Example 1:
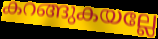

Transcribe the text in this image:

കറങ്ങുകയല്ലേ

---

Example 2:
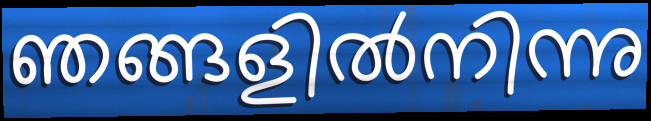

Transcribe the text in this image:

ഞങ്ങളിൽനിന്നു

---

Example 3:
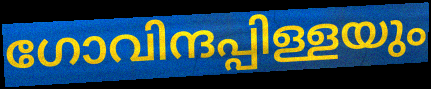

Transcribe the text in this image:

ഗോവിന്ദപ്പിള്ളയും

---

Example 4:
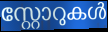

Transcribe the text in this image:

സ്റ്റോറുകൾ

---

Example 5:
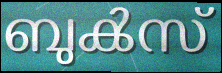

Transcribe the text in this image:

ബുൿസ്